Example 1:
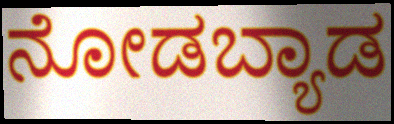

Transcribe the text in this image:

ನೋಡಬ್ಯಾಡ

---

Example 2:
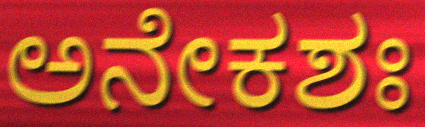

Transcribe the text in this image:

ಅನೇಕಶಃ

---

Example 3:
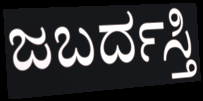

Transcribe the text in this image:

ಜಬರ್ದಸ್ತಿ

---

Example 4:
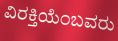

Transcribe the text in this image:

ವಿರಕ್ತಿಯೆಂಬವರು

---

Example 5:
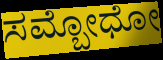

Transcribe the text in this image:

ಸಮ್ಬೋಧೋ